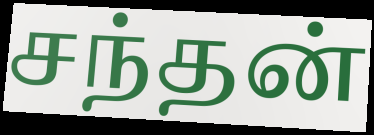
சந்தன்